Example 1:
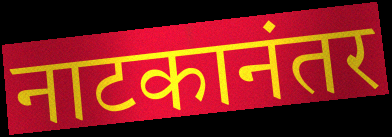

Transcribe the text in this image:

नाटकानंतर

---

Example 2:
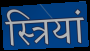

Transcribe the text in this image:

स्त्रियां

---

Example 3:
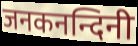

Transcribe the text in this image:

जनकनन्दिनी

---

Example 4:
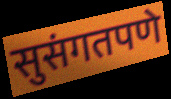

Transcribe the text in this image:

सुसंगतपणे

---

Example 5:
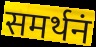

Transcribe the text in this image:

समर्थनं